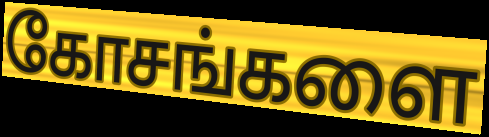
கோசங்களை